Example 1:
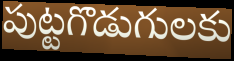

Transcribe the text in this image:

పుట్టగొడుగులకు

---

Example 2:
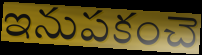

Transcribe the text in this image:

ఇనుపకంచె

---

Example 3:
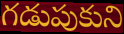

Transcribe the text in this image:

గడుపుకుని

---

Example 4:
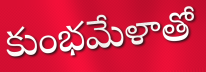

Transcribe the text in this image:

కుంభమేళాతో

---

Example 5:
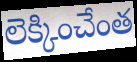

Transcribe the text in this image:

లెక్కించేంత